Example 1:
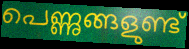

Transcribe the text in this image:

പെണ്ണുങ്ങളുണ്ട്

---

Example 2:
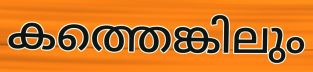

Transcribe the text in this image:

കത്തെങ്കിലും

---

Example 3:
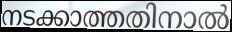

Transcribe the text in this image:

നടക്കാത്തതിനാൽ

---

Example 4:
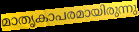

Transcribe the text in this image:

മാതൃകാപരമായിരുന്നു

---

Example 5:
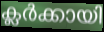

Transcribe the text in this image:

ക്ലർക്കായി